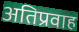
अतिप्रवाह